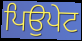
ਪਿਉਪੇਟ